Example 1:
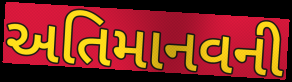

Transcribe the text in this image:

અતિમાનવની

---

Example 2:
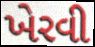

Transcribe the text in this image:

ખેરવી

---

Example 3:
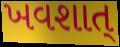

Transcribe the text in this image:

ખવશાત્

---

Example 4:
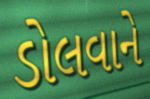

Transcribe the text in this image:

ડોલવાને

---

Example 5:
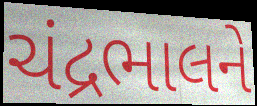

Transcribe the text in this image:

ચંદ્રભાલને